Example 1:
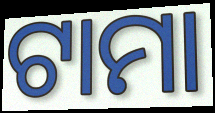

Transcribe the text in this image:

ଟାମା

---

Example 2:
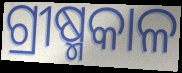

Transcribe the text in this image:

ଗ୍ରୀଷ୍ମକାଳ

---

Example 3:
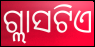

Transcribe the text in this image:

ଗ୍ଲାସଟିଏ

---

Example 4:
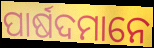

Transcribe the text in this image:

ପାର୍ଷଦମାନେ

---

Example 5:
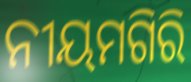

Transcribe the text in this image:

ନୀୟମଗିରି